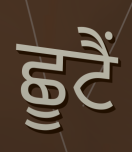
ਛੂਟੈਂ